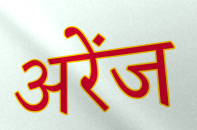
अरेंज